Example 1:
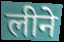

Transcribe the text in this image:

लीने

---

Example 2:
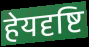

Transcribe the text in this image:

हेयदृष्टि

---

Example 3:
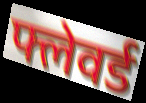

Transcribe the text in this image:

फ्लेवर्ड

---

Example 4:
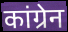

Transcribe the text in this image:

कांग्रेन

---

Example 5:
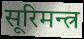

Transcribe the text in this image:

सूरिमन्त्र